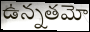
ఉన్నతమో